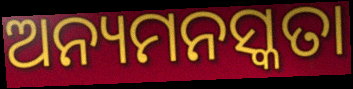
ଅନ୍ୟମନସ୍କତା